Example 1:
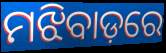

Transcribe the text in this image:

ମଝିବାଡ଼ରେ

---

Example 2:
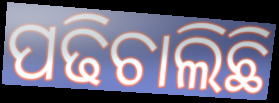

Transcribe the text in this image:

ପଢିଚାଲିଛି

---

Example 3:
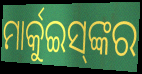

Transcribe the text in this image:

ମାର୍କୁଇସ୍‍ଙ୍କର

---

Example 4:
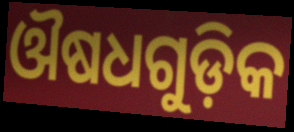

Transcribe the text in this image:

ଔଷଧଗୁଡ଼ିକ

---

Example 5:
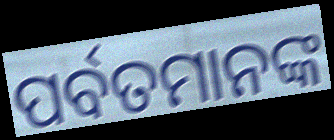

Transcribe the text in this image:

ପର୍ବତମାନଙ୍କ